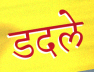
डदले